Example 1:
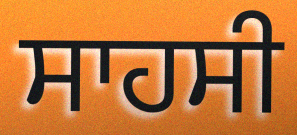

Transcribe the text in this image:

ਸਾਹਸੀ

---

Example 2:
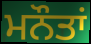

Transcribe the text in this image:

ਮਨੌਤਾਂ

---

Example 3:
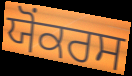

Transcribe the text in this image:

ਯੋੰਕਰਸ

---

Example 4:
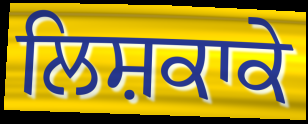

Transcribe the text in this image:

ਲਿਸ਼ਕਾਕੇ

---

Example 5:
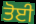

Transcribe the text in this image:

ਤੋਈ